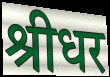
श्रीधर